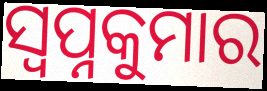
ସ୍ଵପ୍ନକୁମାର